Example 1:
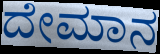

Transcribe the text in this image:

ದೇಮಾನ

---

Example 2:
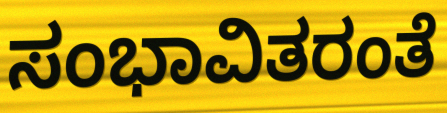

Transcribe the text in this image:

ಸಂಭಾವಿತರಂತೆ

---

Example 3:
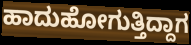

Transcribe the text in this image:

ಹಾದುಹೋಗುತ್ತಿದ್ದಾಗ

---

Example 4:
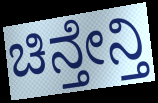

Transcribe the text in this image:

ಚಿನ್ತೇನ್ತಿ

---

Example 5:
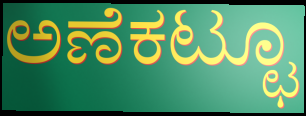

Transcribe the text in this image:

ಅಣೆಕಟ್ಟೂ